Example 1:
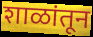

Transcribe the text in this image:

शाळांतून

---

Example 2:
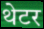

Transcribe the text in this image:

थेटर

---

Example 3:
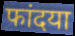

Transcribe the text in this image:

फांदया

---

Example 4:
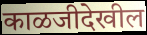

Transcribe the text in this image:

काळजीदेखील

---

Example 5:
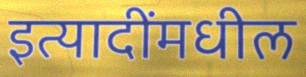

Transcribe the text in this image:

इत्यादींमधील